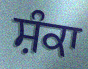
ਸ਼ੰਕਾ